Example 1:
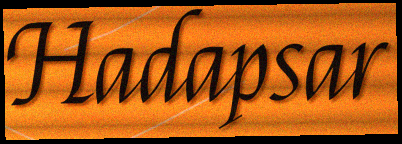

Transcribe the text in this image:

Hadapsar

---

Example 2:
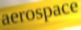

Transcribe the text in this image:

aerospace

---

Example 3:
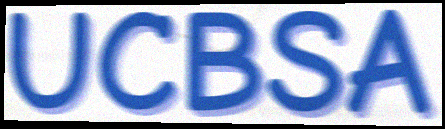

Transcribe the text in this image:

UCBSA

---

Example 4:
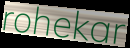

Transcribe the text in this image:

rohekar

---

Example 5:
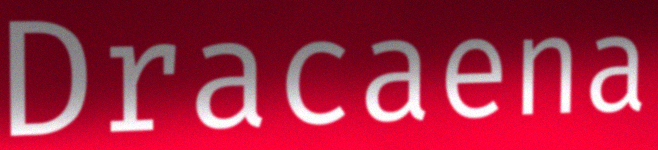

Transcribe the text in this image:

Dracaena